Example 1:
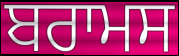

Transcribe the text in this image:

ਬਰਾਮਸ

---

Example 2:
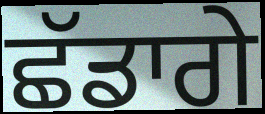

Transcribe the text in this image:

ਛੱਡਾਗੇ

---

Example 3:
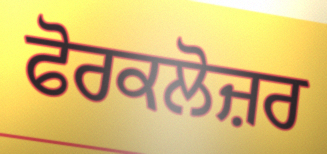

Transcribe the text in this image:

ਫੋਰਕਲੋਜ਼ਰ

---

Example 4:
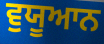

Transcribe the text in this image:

ਵੁਯੂਆਨ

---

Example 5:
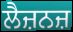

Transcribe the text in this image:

ਲੈਜ਼ਨਜ਼